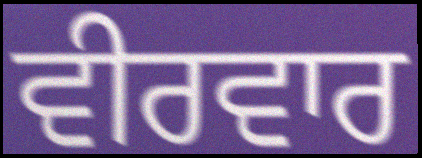
ਵੀਰਵਾਰ